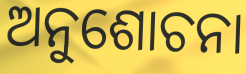
ଅନୁଶୋଚନା